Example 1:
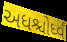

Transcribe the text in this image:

અધશ્ચોર્ધ્વં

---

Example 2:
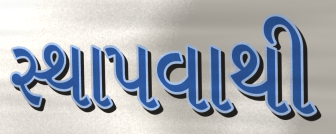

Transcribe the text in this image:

સ્થાપવાથી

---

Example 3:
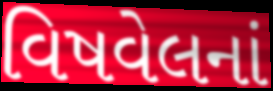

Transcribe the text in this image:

વિષવેલનાં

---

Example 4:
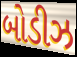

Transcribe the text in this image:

બોડીઝ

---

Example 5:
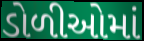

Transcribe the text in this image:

ડોળીઓમાં